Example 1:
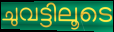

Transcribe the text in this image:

ചുവട്ടിലൂടെ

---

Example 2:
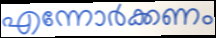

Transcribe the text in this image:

എന്നോർക്കണം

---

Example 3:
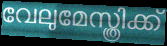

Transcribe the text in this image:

വേലുമേസ്ത്രിക്ക്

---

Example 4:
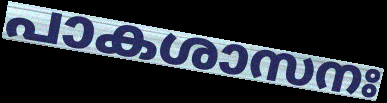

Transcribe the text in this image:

പാകശാസനഃ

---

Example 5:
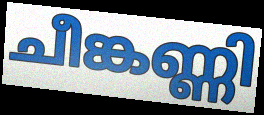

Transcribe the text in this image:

ചീങ്കണ്ണി